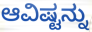
ಆವಿಷ್ಟನ್ನು